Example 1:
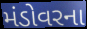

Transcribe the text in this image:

મંડોવરના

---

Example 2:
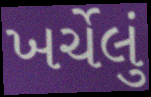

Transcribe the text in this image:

ખર્ચેલું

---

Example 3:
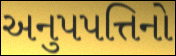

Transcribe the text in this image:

અનુપપત્તિનો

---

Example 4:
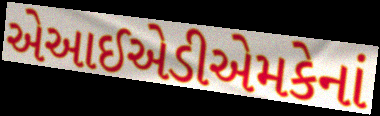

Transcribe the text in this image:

એઆઈએડીએમકેનાં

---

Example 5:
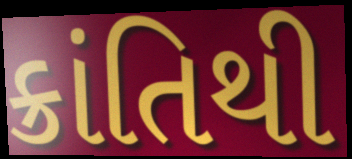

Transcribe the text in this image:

ક્રાંતિથી